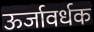
ऊर्जावर्धक